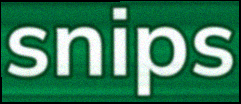
snips